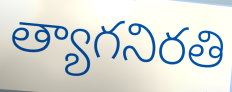
త్యాగనిరతి